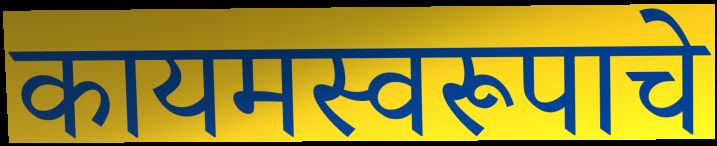
कायमस्वरूपाचे